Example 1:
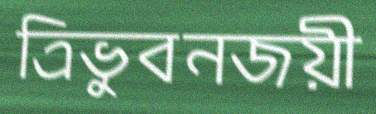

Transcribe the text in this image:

ত্রিভুবনজয়ী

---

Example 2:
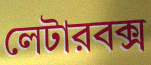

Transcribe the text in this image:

লেটারবক্স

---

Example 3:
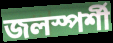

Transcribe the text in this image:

জলস্পর্শী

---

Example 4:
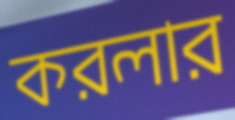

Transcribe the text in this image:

করলার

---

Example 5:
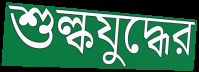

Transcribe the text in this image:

শুল্কযুদ্ধের